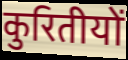
कुरितीयों